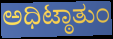
ಅಧಿಟ್ಠಾತುಂ